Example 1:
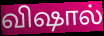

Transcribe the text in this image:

விஷால்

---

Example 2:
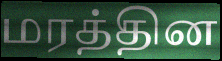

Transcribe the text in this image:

மரத்தின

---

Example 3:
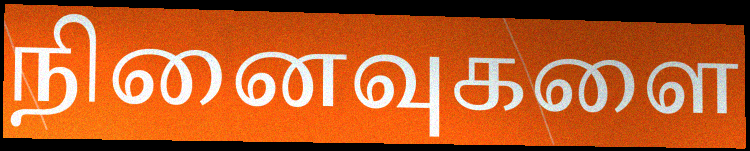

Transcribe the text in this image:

நினைவுகளை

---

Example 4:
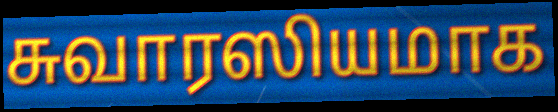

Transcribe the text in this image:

சுவாரஸியமாக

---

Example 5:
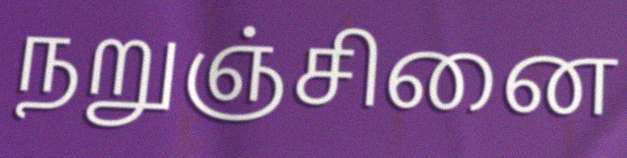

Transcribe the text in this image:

நறுஞ்சினை